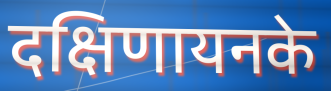
दक्षिणायनके